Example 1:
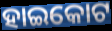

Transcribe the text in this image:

ହାଇକୋଟ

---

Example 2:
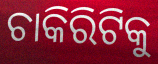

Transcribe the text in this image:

ଚାକିରିଟିକୁ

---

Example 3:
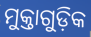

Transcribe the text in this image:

ମୁକ୍ତାଗୁଡ଼ିକ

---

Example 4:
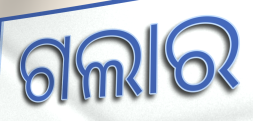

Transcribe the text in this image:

ଗଲାର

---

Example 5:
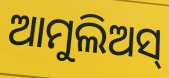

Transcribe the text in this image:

ଆମୁଲିଅସ୍